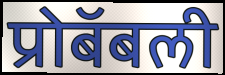
प्रोबॅबली